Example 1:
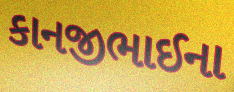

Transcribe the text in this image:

કાનજીભાઈના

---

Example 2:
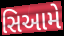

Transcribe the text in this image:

સિઆમે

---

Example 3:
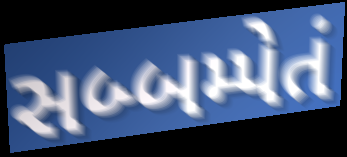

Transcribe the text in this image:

સબ્બમ્પેતં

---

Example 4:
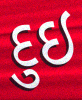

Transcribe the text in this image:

દુઇ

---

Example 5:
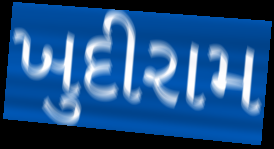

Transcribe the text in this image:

ખુદીરામ